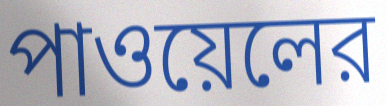
পাওয়েলের